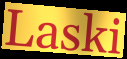
Laski